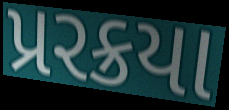
પ્રરક્રયા